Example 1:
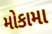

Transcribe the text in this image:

મોકામા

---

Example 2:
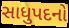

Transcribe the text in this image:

સાધુપદનો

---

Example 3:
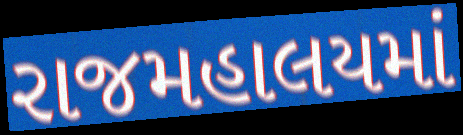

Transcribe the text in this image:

રાજમહાલયમાં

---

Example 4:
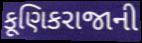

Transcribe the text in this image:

કૂણિકરાજાની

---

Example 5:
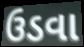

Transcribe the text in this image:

ઉડવા